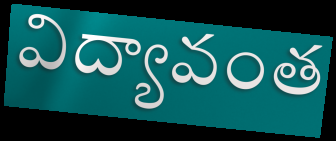
విద్యావంత